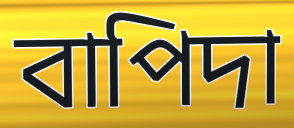
বাপিদা